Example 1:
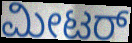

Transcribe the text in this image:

ಮೀಟರ್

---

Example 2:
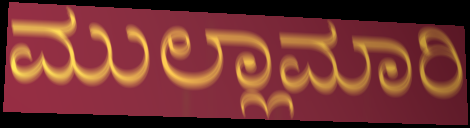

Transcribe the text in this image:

ಮುಲ್ಲಾಮಾರಿ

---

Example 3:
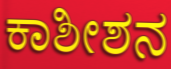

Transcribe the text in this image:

ಕಾಶೀಶನ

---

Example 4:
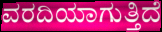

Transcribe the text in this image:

ವರದಿಯಾಗುತ್ತಿದೆ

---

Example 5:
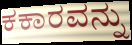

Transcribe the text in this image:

ಕಕಾರವನ್ನು